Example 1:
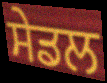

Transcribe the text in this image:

ਸੇਡਲ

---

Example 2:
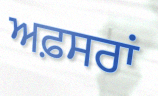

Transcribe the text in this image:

ਅਫ਼ਸਰਾਂ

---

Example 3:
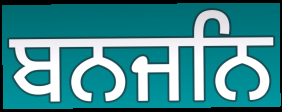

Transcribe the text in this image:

ਬਨਜਨਿ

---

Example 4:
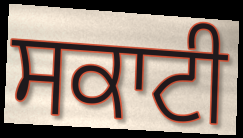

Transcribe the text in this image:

ਸਕਾਟੀ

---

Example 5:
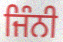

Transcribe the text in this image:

ਜਿੰਨੀ